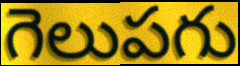
గెలుపగు